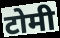
टोमी